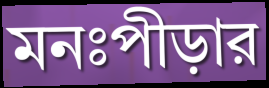
মনঃপীড়ার